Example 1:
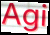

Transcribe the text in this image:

Agi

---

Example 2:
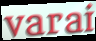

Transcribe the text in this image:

varai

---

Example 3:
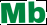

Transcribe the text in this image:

Mb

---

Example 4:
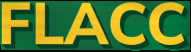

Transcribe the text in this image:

FLACC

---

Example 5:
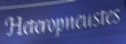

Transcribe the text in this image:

Heteropneustes